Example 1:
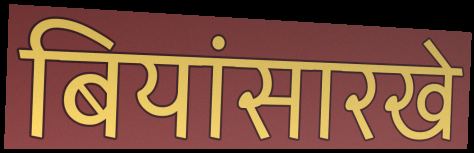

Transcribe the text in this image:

बियांसारखे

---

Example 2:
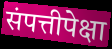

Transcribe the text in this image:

संपत्तीपेक्षा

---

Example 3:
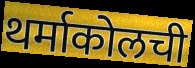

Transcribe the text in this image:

थर्माकोलची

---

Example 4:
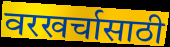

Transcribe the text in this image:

वरखर्चासाठी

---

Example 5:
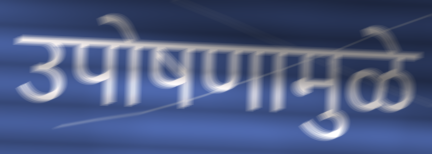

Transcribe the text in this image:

उपोषणामुळे